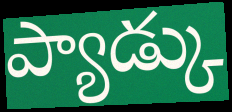
ప్యాడ్కు